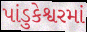
પાંડુકેશ્વરમાં